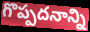
గొప్పదనాన్ని